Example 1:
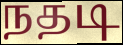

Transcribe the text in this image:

நதடி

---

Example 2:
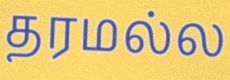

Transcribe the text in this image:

தரமல்ல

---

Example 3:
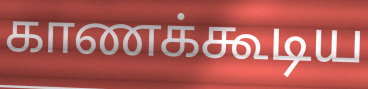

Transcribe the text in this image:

காணக்கூடிய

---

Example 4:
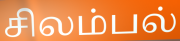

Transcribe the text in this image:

சிலம்பல்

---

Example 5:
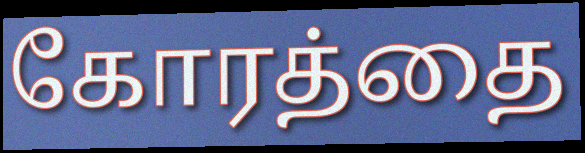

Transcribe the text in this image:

கோரத்தை